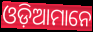
ଓଡ଼ିଆମାନେ